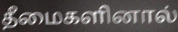
தீமைகளினால்